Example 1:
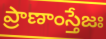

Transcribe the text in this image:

ప్రాణాంస్తేజః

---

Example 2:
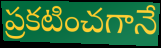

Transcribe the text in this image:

ప్రకటించగానే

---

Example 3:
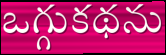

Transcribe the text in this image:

ఒగ్గుకథను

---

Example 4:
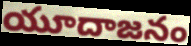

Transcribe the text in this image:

యూదాజనం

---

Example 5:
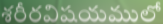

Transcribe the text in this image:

శరీరవిషయములో